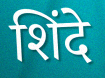
शिंदे